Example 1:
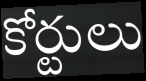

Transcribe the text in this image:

కోర్టులు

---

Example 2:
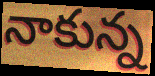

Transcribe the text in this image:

నాకున్న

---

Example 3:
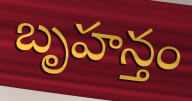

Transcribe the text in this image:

బృహన్తం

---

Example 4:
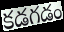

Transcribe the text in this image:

కడగడం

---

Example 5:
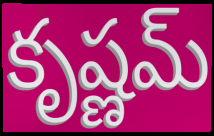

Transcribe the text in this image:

కృష్ణమ్